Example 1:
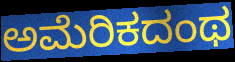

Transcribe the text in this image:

ಅಮೆರಿಕದಂಥ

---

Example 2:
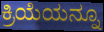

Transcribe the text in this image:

ಕ್ರಿಯೆಯನ್ನೂ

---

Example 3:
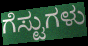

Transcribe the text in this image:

ಗೆಸ್ಟುಗಳು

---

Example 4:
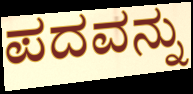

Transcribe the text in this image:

ಪದವನ್ನು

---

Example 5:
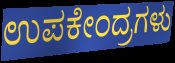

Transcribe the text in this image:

ಉಪಕೇಂದ್ರಗಳು